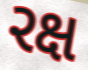
રક્ષ